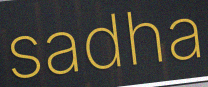
sadha